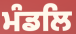
ਮੰਡਲਿ